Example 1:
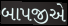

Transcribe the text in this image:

બાપજીએ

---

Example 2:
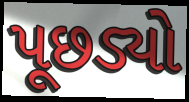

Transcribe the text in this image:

પૂછડ્યો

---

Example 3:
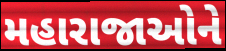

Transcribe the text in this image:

મહારાજાઓને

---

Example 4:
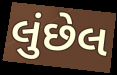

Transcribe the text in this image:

લુંછેલ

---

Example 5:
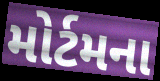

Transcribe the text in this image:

મોર્ટમના